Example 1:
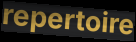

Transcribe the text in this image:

repertoire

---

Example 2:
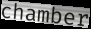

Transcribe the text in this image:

chamber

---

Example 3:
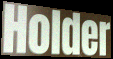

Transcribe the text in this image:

Holder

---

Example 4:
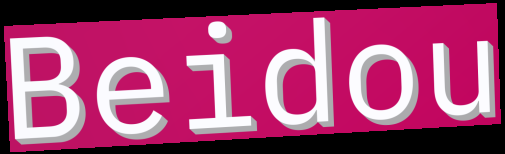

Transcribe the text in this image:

Beidou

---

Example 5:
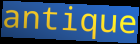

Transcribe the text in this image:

antique